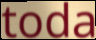
toda